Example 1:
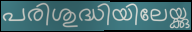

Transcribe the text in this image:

പരിശുദ്ധിയിലേയ്ക്കു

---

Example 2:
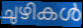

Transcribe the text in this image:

ചുഴികൾ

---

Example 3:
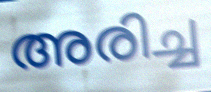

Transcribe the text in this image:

അരിച്ച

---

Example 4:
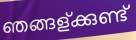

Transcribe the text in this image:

ഞങ്ങള്ക്കുണ്ട്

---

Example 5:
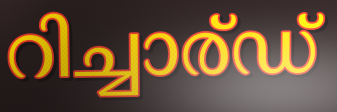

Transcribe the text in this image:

റിച്ചാര്ഡ്